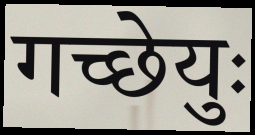
गच्छेयुः